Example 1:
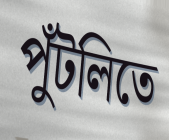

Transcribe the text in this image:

পুঁটলিতে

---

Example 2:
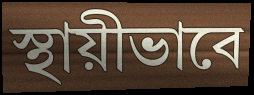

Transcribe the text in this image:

স্থায়ীভাবে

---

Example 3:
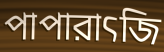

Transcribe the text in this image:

পাপারাৎজি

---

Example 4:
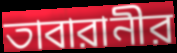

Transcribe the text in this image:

তাবারানীর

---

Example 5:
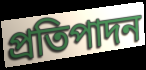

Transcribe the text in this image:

প্রতিপাদন